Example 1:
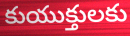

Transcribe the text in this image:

కుయుక్తులకు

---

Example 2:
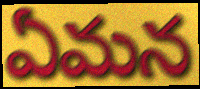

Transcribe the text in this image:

ఏమన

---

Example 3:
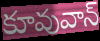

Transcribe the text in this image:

కూవువాన్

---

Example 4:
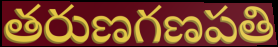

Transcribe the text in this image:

తరుణగణపతి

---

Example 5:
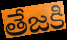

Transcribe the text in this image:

తేజకి